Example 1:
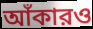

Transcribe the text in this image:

আঁকারও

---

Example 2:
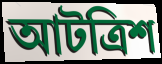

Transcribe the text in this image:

আটত্রিশ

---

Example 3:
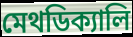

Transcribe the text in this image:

মেথডিক্যালি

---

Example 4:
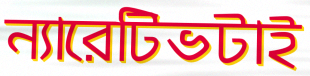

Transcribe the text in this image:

ন্যারেটিভটাই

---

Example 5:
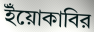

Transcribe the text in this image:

ইঁয়োকাবির